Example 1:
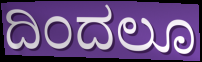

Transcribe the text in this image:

ದಿಂದಲೂ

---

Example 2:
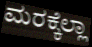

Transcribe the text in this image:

ಮರಕ್ಕೆಲ್ಲಾ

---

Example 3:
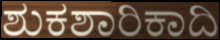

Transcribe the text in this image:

ಶುಕಶಾರಿಕಾದಿ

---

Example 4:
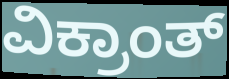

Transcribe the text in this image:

ವಿಕ್ರಾಂತ್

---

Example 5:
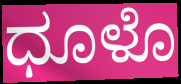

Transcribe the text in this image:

ಧೂಳೊ